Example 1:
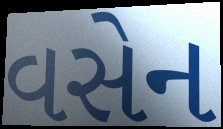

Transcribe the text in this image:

વસેન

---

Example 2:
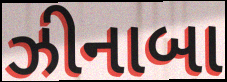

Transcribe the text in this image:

ઝીનાબા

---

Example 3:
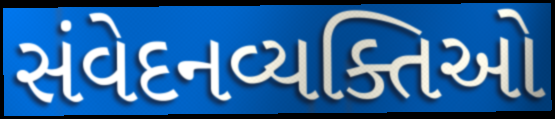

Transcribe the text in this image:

સંવેદનવ્યક્તિઓ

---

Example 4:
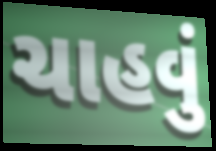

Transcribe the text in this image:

ચાહવું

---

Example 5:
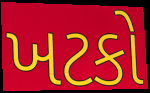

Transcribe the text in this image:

ખટકો